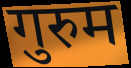
गुरुम